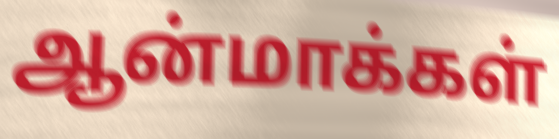
ஆன்மாக்கள்